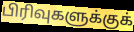
பிரிவுகளுக்குக்